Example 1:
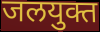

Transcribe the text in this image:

जलयुक्त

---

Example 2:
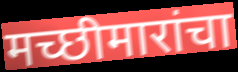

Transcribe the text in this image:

मच्छीमारांचा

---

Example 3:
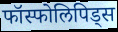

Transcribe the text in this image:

फॉस्फोलिपिड्स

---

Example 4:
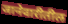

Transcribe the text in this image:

जानेवारीतील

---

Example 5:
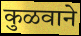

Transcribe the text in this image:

कुळवाने